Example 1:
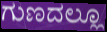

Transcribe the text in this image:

ಗುಣದಲ್ಲೂ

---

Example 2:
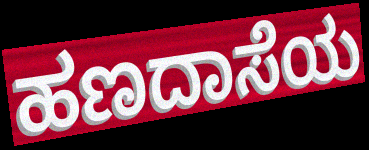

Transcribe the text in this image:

ಹಣದಾಸೆಯ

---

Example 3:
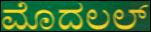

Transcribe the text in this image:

ಮೊದಲಲ್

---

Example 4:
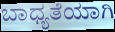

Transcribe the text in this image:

ಬಾಧ್ಯತೆಯಾಗಿ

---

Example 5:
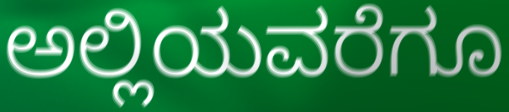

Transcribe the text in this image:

ಅಲ್ಲಿಯವರೆಗೂ